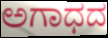
ಅಗಾಧದ